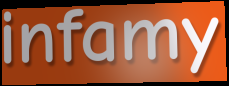
infamy